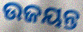
ଉଜୟନ୍ତ